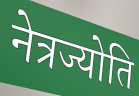
नेत्रज्योति